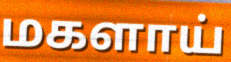
மகளாய்